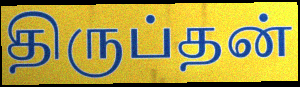
திருப்தன்